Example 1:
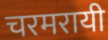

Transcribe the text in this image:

चरमरायी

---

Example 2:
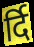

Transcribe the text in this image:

र्दि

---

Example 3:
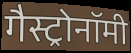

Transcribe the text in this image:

गैस्ट्रोनॉमी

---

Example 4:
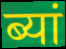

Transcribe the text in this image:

ब्यां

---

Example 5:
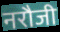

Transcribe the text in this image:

नरौजी